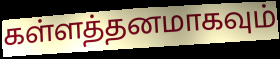
கள்ளத்தனமாகவும்